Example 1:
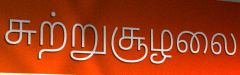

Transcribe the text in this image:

சுற்றுசூழலை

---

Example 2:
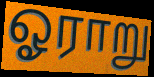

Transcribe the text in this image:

ஓராறு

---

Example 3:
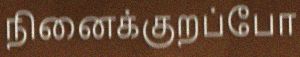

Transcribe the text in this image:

நினைக்குறப்போ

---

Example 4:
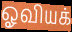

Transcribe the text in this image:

ஓவியக்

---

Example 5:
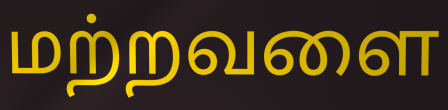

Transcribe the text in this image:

மற்றவளை